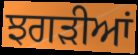
ਝਗੜੀਆਂ